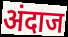
अंदाज